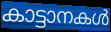
കാട്ടാനകൾ